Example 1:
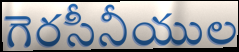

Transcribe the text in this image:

గెరసీనీయుల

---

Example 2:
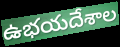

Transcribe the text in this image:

ఉభయదేశాల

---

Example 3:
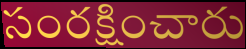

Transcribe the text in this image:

సంరక్షించారు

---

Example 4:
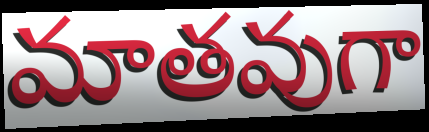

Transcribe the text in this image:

మాతవుగా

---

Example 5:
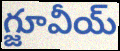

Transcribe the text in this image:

గ్జూవీయ్